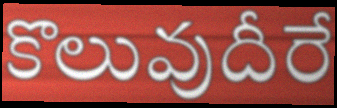
కొలువుదీరే